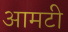
आमटी